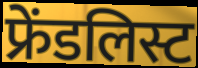
फ्रेंडलिस्ट